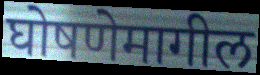
घोषणेमागील